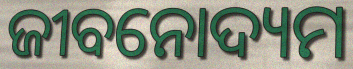
ଜୀବନୋଦ୍ୟମ